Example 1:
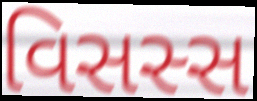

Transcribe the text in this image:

વિસસ્સ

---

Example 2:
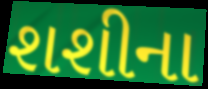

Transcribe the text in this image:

શશીના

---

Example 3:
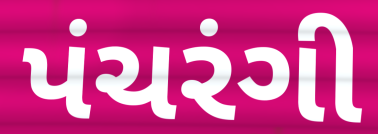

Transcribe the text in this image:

પંચરંગી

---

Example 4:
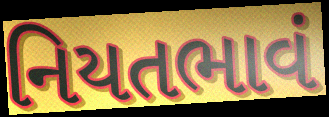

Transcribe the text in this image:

નિયતભાવં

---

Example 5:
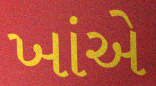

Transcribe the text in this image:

ખાંએ